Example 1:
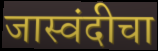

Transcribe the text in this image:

जास्वंदीचा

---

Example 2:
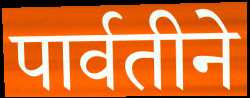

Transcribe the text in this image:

पार्वतीने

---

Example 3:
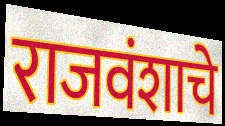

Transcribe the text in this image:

राजवंशाचे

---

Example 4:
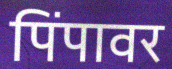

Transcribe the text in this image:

पिंपावर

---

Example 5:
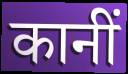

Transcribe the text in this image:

कानीं